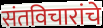
संतविचारांचे